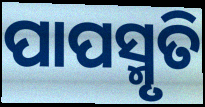
ପାପସ୍ମୃତି